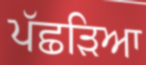
ਪੱਛੜਿਆ